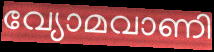
വ്യോമവാണി